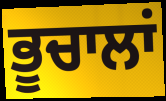
ਭੂਚਾਲਾਂ